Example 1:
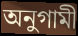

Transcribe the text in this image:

অনুগামী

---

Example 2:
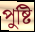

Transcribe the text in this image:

পুষ্টি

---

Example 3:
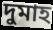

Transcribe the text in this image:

দুমাহ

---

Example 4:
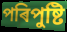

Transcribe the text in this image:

পৰিপুষ্টি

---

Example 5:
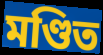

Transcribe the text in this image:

মণ্ডিত